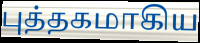
புத்தகமாகிய